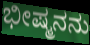
ಭೀಷ್ಮನನು